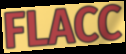
FLACC